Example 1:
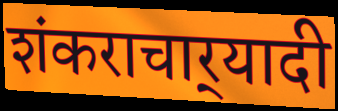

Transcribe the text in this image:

शंकराचार्यादी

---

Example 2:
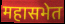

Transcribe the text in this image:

महासभेत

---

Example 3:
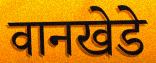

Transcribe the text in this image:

वानखेडे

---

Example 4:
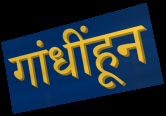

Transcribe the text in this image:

गांधींहून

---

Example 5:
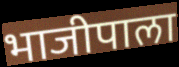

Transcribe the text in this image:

भाजीपाला